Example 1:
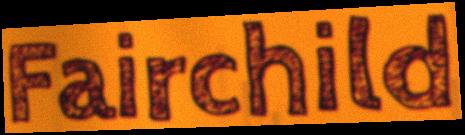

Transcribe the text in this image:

Fairchild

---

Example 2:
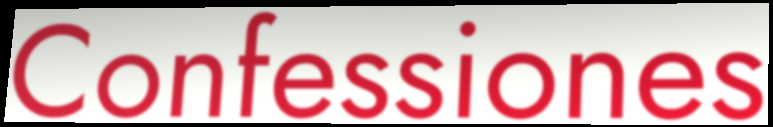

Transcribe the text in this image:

Confessiones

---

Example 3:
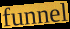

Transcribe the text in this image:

funnel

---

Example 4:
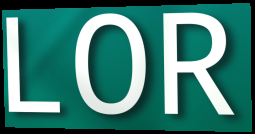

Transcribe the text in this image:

LOR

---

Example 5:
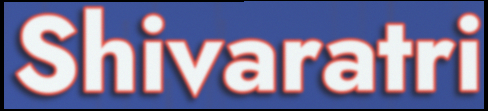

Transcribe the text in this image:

Shivaratri